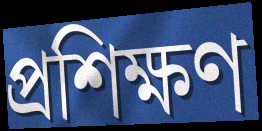
প্রশিক্ষণ